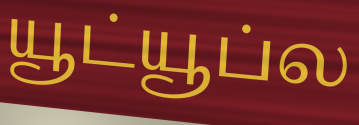
யூட்யூப்ல